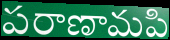
పరాణామపి